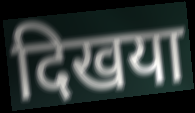
दिखया